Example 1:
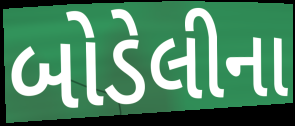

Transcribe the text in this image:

બોડેલીના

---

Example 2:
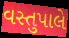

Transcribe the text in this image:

વસ્તુપાલે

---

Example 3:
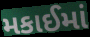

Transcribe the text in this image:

મકાઈમાં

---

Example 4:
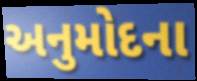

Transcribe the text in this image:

અનુમોદના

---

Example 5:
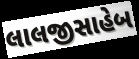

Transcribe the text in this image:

લાલજીસાહેબ